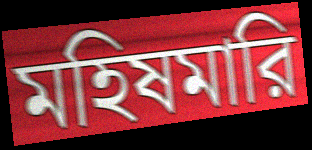
মহিষমারি